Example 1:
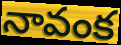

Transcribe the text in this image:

నావంక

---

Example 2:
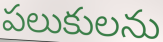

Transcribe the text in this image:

పలుకులను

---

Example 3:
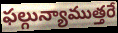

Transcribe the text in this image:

ఫల్గున్యాముత్తరే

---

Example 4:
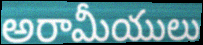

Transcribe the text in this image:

అరామీయులు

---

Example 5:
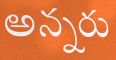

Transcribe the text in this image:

అన్నరు